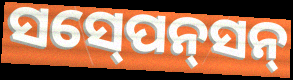
ସସ୍‍ପେନ୍‍ସନ୍